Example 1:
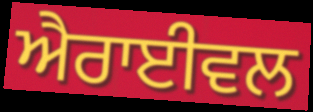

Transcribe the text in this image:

ਐਰਾਈਵਲ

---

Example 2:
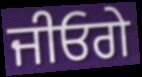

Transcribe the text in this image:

ਜੀਓਗੇ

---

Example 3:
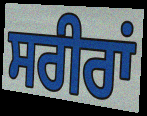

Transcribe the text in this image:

ਸਰੀਰਾਂ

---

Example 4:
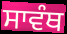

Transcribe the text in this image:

ਸਾਵੰਥ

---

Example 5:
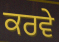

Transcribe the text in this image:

ਕਰਵੇ